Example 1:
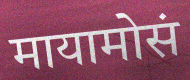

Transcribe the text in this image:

मायामोसं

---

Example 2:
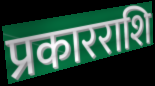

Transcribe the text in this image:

प्रकारराशि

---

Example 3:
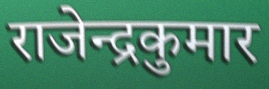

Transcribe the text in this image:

राजेन्द्रकुमार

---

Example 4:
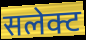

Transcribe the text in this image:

सलेक्ट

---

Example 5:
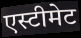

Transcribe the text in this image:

एस्‍टीमेट